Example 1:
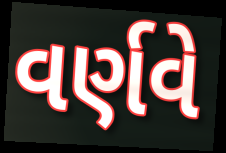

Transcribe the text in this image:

વર્ણવે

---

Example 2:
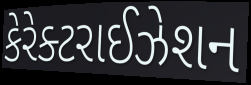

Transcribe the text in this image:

કેરેક્ટરાઈઝેશન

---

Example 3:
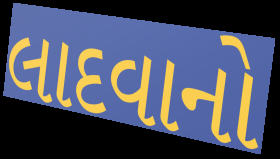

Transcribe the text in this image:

લાદવાનો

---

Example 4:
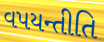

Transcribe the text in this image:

વપયન્તીતિ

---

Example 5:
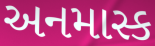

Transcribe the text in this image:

અનમાસ્ક